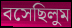
বসেছিলুম